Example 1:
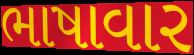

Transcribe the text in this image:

ભાષાવાર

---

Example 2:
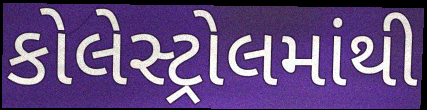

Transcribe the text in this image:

કોલેસ્ટ્રોલમાંથી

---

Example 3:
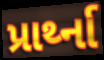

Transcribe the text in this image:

પ્રાર્થ્ના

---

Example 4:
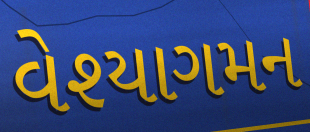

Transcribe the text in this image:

વેશ્યાગમન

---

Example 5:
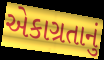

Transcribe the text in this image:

એકાગ્રતાનું